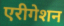
एरीगेशन